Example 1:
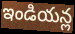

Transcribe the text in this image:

ఇండియన్ల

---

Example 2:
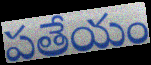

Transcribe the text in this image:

పతేయం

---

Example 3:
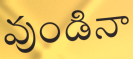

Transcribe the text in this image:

వుండినా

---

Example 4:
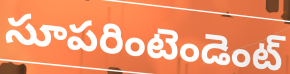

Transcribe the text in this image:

సూపరింటెండెంట్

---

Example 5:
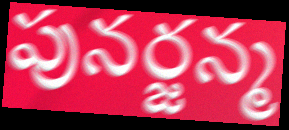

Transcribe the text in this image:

పునర్జన్మ